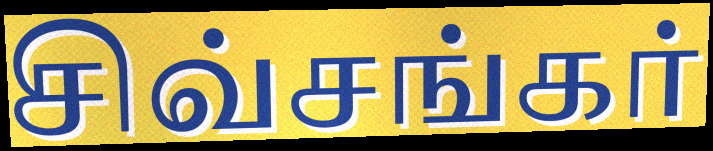
சிவ்சங்கர்